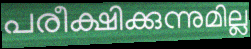
പരീക്ഷിക്കുന്നുമില്ല